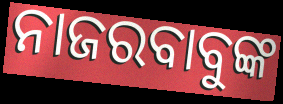
ନାଜରବାବୁଙ୍କ